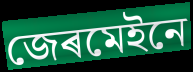
জেৰমেইনে